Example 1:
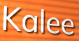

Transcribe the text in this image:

Kalee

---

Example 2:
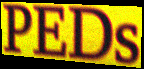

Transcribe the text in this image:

PEDs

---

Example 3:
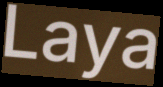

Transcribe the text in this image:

Laya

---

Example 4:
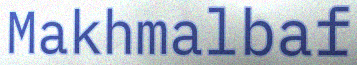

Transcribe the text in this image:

Makhmalbaf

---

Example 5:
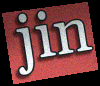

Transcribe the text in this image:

jin